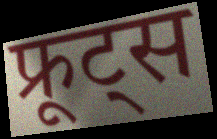
फ्रूट्स